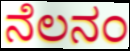
ನೆಲನಂ